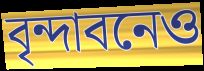
বৃন্দাবনেও